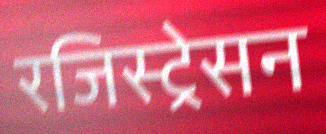
रजिस्ट्रेसन